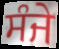
ਸੰਜੇ